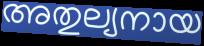
അതുല്യനായ